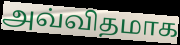
அவ்விதமாக